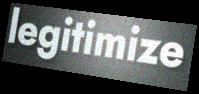
legitimize